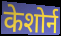
केशोर्न